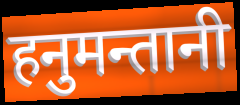
हनुमन्तानी